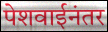
पेशवाईनंतर